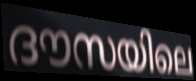
ദൗസയിലെ